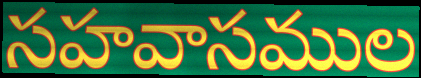
సహవాసముల